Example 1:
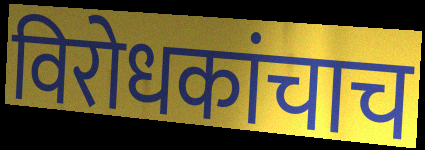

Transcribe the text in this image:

विरोधकांचाच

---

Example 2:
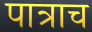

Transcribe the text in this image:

पात्राच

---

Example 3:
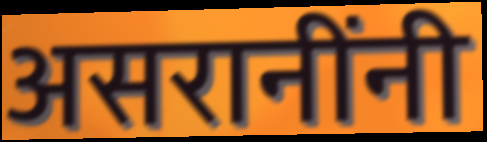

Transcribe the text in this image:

असरानींनी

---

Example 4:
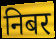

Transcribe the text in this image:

निबर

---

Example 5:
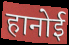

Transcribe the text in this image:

हानोई